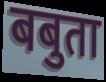
बबुता